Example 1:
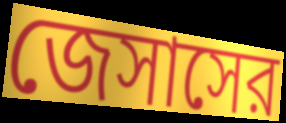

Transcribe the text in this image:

জেসাসের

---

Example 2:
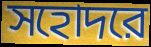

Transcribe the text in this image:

সহোদরে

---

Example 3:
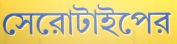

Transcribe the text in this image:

সেরোটাইপের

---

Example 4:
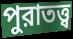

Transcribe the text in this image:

পুরাতত্ত্ব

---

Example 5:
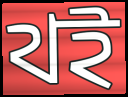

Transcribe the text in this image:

থই